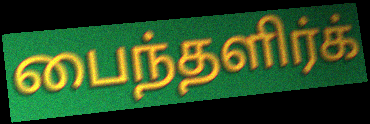
பைந்தளிர்க்